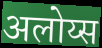
अलोय्स